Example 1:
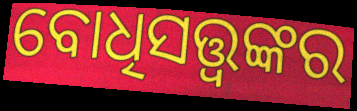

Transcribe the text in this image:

ବୋଧିସତ୍ତ୍ଵଙ୍କର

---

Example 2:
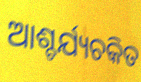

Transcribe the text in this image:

ଆଶ୍ଚର୍ଯ୍ୟଚକିତ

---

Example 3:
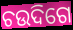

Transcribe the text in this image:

ଚଉଦିଗେ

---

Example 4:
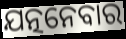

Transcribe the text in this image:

ଯତ୍ନନେବାର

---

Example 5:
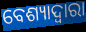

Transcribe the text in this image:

ବେଶ୍ୟାଦ୍ୱାରା